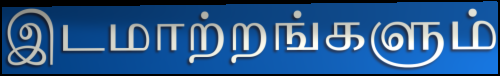
இடமாற்றங்களும்